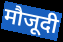
मौजूदी